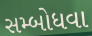
સમ્બોધવા